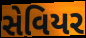
સેવિયર